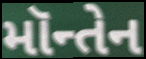
મૉન્તેન